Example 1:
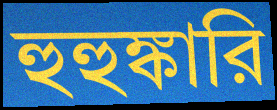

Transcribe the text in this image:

হুহুঙ্কারি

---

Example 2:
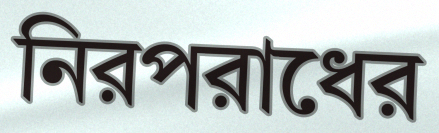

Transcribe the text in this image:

নিরপরাধের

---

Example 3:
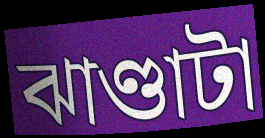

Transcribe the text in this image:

ঝাণ্ডাটা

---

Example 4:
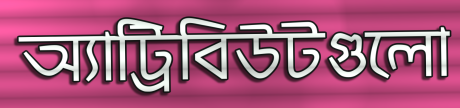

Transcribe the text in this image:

অ্যাট্রিবিউটগুলো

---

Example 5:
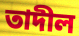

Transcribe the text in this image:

তাদীল